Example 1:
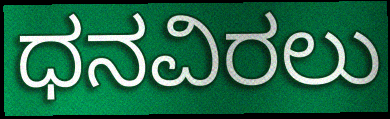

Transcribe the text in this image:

ಧನವಿರಲು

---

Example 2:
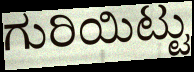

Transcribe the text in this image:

ಗುರಿಯಿಟ್ಟು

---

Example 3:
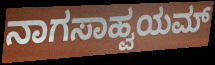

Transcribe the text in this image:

ನಾಗಸಾಹ್ವಯಮ್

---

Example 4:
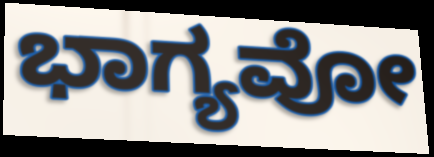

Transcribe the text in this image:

ಭಾಗ್ಯವೋ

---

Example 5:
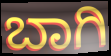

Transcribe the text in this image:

ಬಾಗಿ